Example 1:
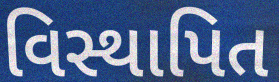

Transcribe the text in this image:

વિસ્થાપિત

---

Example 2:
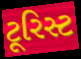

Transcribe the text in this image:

ટૂરિસ્ટ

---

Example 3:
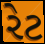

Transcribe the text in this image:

રેટ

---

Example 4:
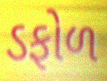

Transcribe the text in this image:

ડફોળ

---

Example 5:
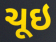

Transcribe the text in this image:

ચૂઇ